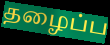
தழைப்ப